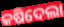
କଷିଦେଲା